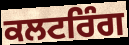
ਕਲਟਰਿੰਗ